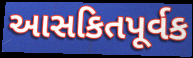
આસકિતપૂર્વક